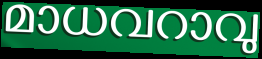
മാധവറാവു